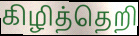
கிழித்தெறி